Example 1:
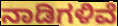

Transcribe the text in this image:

ನಾಡಿಗಳಿವೆ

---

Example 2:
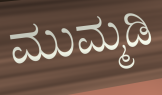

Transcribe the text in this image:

ಮುಮ್ಮಡಿ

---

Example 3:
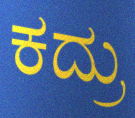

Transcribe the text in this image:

ಕದ್ರು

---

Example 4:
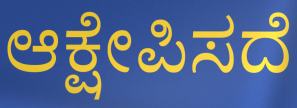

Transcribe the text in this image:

ಆಕ್ಷೇಪಿಸದೆ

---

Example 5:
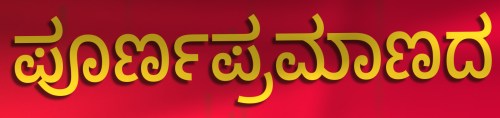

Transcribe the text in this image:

ಪೂರ್ಣಪ್ರಮಾಣದ